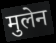
मुलेन